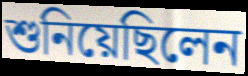
শুনিয়েছিলেন